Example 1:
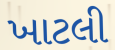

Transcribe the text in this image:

ખાટલી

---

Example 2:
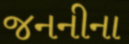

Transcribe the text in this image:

જનનીના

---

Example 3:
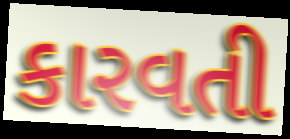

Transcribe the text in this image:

કારવતી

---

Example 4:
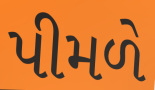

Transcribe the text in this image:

પીમળે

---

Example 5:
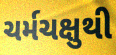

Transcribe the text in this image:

ચર્મચક્ષુથી